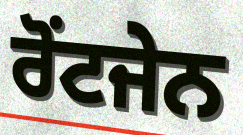
ਰੋਂਟਜੇਨ